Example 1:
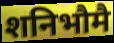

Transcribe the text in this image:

शनिभौमै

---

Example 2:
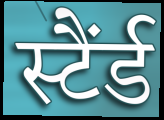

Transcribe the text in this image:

स्टैंर्ड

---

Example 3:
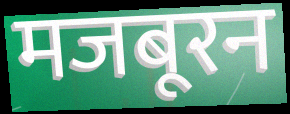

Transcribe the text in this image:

मजबूरन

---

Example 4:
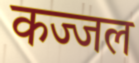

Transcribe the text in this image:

कज्जल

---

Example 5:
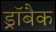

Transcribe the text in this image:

ड्रॉबैक